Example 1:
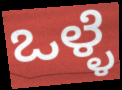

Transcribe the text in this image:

ಒಳ್ಳೆ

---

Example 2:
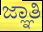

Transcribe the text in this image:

ಜ್ಞಾತಿ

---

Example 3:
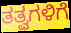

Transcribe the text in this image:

ತತ್ವಗಳಿಗೆ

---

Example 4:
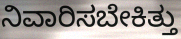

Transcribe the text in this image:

ನಿವಾರಿಸಬೇಕಿತ್ತು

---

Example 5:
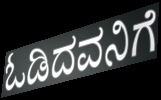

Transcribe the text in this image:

ಓಡಿದವನಿಗೆ